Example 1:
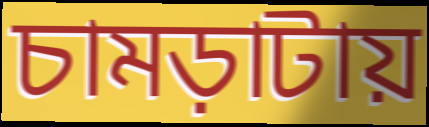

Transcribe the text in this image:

চামড়াটায়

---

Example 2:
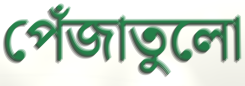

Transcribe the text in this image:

পেঁজাতুলো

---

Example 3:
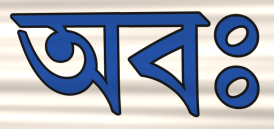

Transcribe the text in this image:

অবঃ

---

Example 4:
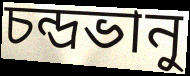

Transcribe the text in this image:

চন্দ্রভানু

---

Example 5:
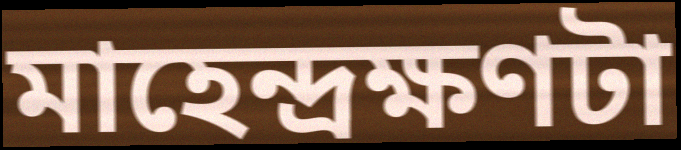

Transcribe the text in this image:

মাহেন্দ্রক্ষণটা